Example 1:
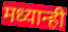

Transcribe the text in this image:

मध्यान्ही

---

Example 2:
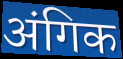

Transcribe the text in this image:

अंगिक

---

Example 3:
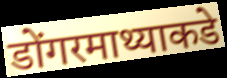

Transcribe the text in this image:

डोंगरमाथ्याकडे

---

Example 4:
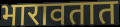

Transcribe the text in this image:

भारावतात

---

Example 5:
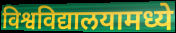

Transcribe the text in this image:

विश्वविद्यालयामध्ये